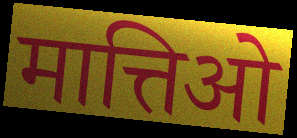
मात्तिओ